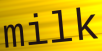
milk